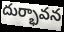
దుర్భావన